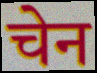
चेन